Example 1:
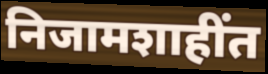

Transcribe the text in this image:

निजामशाहींत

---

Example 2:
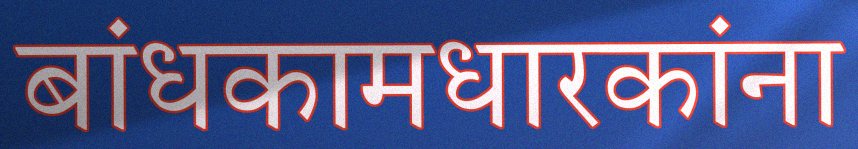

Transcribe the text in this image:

बांधकामधारकांना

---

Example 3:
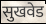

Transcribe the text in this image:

सुखवेड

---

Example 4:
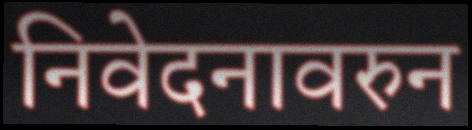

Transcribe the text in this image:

निवेदनावरुन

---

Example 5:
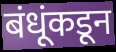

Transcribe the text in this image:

बंधूंकडून